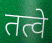
तत्वे